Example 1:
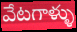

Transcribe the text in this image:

వేటగాళ్ళు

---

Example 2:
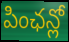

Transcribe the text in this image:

పింఛన్లో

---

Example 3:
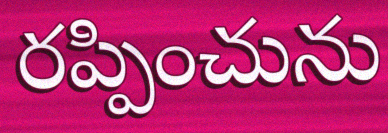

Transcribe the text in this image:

రప్పించును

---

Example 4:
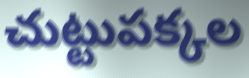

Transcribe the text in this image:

చుట్టుపక్కల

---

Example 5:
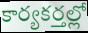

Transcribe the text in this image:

కార్యకర్తల్లో